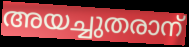
അയച്ചുതരാന്